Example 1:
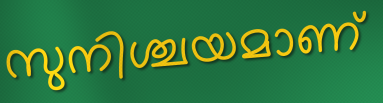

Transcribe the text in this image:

സുനിശ്ചയമാണ്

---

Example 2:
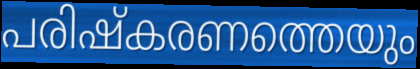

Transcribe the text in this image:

പരിഷ്കരണത്തെയും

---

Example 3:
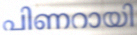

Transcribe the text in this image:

പിണറായി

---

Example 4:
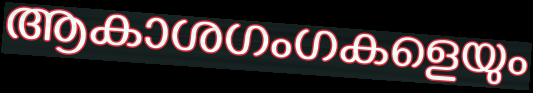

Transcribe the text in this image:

ആകാശഗംഗകളെയും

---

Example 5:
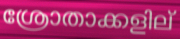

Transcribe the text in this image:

ശ്രോതാക്കളില്